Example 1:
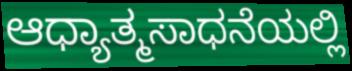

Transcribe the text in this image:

ಆಧ್ಯಾತ್ಮಸಾಧನೆಯಲ್ಲಿ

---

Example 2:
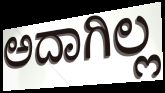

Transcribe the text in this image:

ಅದಾಗಿಲ್ಲ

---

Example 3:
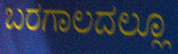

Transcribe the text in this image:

ಬರಗಾಲದಲ್ಲೂ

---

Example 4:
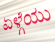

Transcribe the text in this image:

ಏಳ್ಗೆಯು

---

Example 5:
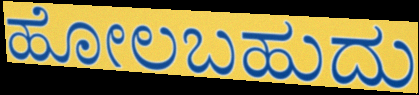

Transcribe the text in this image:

ಹೋಲಬಹುದು